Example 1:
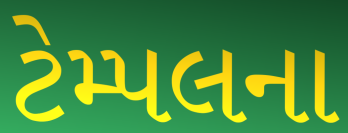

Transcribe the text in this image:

ટેમ્પલના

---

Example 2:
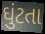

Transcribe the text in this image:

ઘુંટતા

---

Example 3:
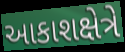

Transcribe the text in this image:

આકાશક્ષેત્રે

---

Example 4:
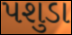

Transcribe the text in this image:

પશુડા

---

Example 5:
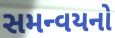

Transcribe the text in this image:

સમન્વયનો